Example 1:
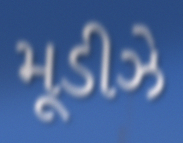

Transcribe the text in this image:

મૂડીઝે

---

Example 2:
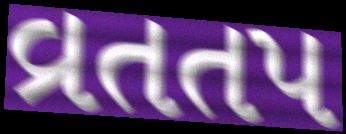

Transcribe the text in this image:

વ્રતતપ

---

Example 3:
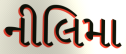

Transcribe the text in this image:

નીલિમા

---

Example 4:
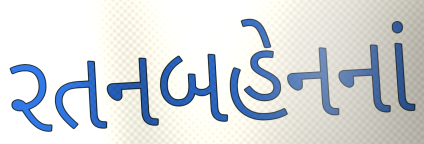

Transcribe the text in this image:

રતનબહેનનાં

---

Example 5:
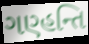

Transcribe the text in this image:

ગણ્હન્તિ